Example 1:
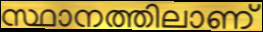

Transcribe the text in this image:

സ്ഥാനത്തിലാണ്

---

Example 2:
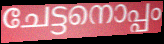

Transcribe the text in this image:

ചേട്ടനൊപ്പം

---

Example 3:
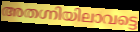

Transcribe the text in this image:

അതഗ്നിയിലാവട്ടെ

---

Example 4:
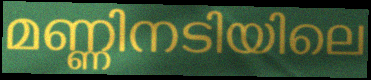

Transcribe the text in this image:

മണ്ണിനടിയിലെ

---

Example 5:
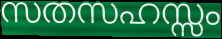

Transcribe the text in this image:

സതസഹസ്സം